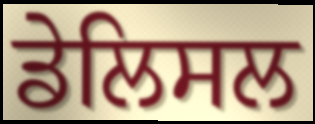
ਡੇਲਿਸਲ